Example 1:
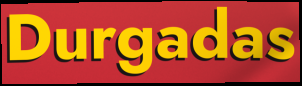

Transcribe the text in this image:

Durgadas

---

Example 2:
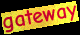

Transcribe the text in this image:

gateway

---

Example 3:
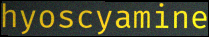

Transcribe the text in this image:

hyoscyamine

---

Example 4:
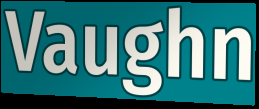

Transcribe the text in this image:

Vaughn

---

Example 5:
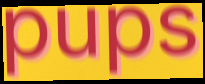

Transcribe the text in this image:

pups